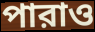
পারাও